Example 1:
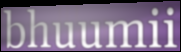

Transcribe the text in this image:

bhuumii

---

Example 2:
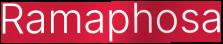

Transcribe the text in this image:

Ramaphosa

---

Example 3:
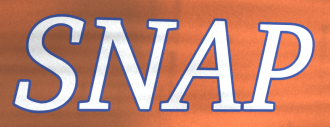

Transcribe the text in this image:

SNAP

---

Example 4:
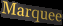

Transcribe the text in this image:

Marquee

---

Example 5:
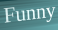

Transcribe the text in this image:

Funny